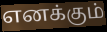
எனக்கும்